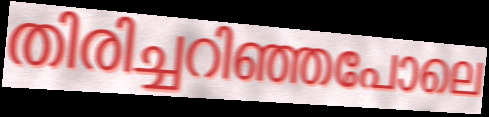
തിരിച്ചറിഞ്ഞപോലെ